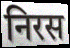
निरस